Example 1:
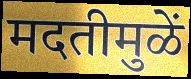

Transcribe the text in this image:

मदतीमुळें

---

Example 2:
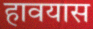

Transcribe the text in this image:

हावयास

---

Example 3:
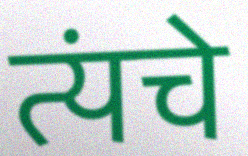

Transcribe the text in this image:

त्यंचे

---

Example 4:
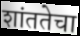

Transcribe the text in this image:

शांततेचा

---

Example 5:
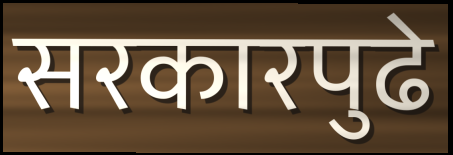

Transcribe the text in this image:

सरकारपुढे